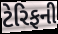
ટેરિફની